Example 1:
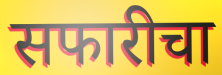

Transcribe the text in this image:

सफारीचा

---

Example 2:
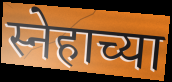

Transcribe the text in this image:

स्नेहाच्या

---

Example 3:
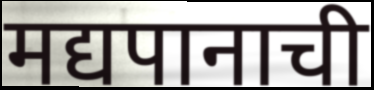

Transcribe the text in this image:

मद्यपानाची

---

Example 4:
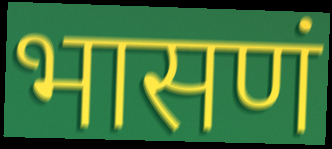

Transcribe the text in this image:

भासणं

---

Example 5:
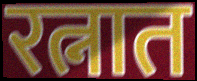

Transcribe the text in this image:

रत्नात